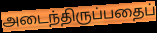
அடைந்திருப்பதைப்